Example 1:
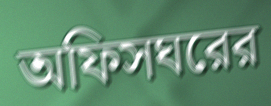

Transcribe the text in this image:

অফিসঘরের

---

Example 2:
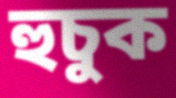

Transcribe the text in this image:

হুচুক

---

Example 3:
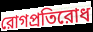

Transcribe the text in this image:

রোগপ্রতিরোধ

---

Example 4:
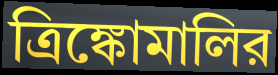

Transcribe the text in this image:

ত্রিঙ্কোমালির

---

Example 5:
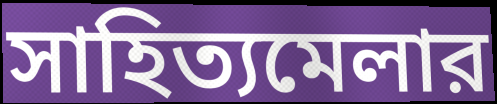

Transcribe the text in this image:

সাহিত্যমেলার